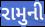
રામુની